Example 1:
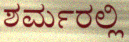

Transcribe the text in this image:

ಶರ್ಮರಲ್ಲಿ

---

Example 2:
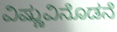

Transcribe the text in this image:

ವಿಷ್ಣುವಿನೊಡನೆ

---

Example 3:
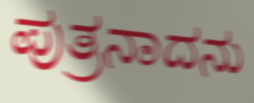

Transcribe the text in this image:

ಪುತ್ರನಾದನು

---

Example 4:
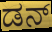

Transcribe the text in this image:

ಡನ್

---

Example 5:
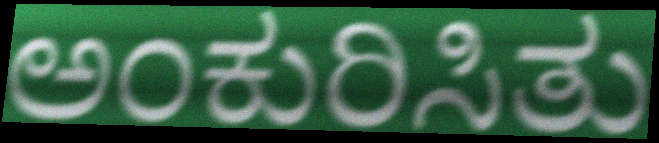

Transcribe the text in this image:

ಅಂಕುರಿಸಿತು